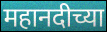
महानदीच्या